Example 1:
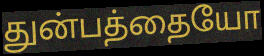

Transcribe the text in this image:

துன்பத்தையோ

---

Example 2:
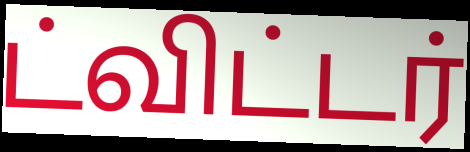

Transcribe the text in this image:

ட்விட்டர்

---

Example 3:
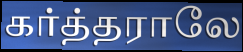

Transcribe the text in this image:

கர்த்தராலே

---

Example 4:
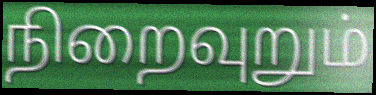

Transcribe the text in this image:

நிறைவுறும்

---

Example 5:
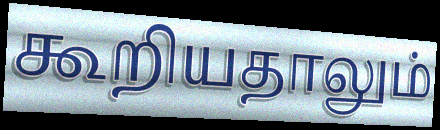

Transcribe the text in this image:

கூறியதாலும்